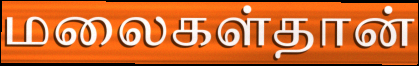
மலைகள்தான்